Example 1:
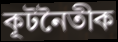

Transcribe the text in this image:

কূটনৈতীক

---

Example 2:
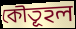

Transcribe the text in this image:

কৌতূহল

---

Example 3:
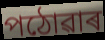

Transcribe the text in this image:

পঠোৱাৰ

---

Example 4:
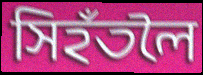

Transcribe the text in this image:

সিহঁতলৈ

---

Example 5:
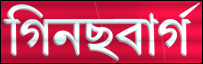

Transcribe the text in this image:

গিনছবাৰ্গ